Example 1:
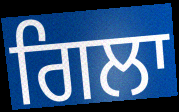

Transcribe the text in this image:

ਗਿਲਾ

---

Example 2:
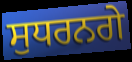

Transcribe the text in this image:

ਸੁਧਰਨਗੇ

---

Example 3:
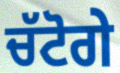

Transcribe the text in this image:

ਚੱਟੋਗੇ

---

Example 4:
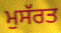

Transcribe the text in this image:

ਮੁਸੱਰਤ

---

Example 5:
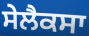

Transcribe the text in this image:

ਸੇਲੈਕਸਾ